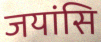
जयांसि